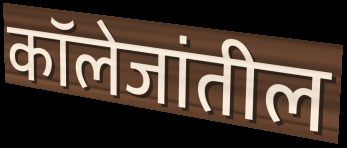
कॉलेजांतील